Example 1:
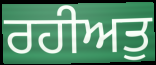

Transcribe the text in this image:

ਰਹੀਅਤੁ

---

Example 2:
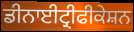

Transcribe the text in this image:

ਡੀਨਾਈਟ੍ਰੀਫੀਕੇਸ਼ਨ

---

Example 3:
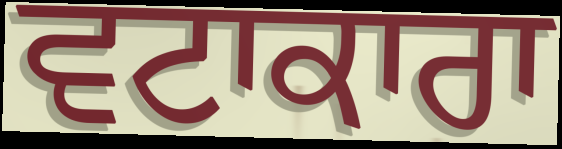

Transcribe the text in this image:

ਵਟਾਕਾਰਾ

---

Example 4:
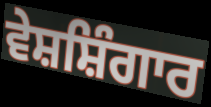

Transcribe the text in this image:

ਵੇਸ਼ਸ਼ਿੰਗਾਰ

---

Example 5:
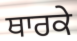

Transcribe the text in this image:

ਥਾਰਕੇ